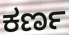
ಕರ್ಣ